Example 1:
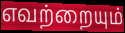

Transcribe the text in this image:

எவற்றையும்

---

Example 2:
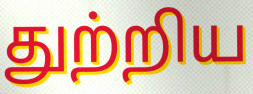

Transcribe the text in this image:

துற்றிய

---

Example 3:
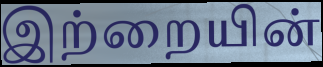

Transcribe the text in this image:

இற்றையின்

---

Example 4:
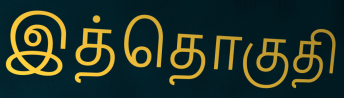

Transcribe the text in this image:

இத்தொகுதி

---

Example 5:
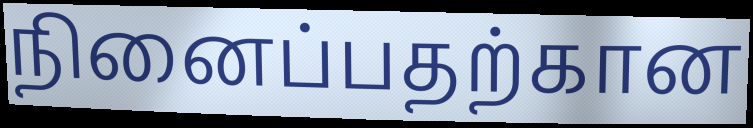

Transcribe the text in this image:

நினைப்பதற்கான